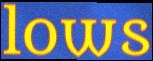
lows